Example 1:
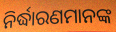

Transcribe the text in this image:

ନିର୍ଦ୍ଧାରଣମାନଙ୍କ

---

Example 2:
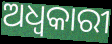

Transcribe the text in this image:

ଅଧ୍ବକାରୀ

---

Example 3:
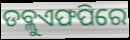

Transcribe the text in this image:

ଡବ୍ଲୁଏଫପିରେ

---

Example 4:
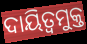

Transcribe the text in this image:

ଦାୟିତ୍ବମୁକ୍ତ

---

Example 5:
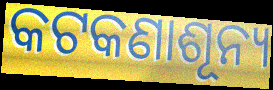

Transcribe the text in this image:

କଟକଣାଶୂନ୍ୟ